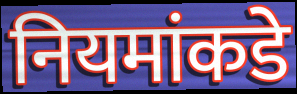
नियमांकडे